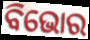
ବିଭୋର